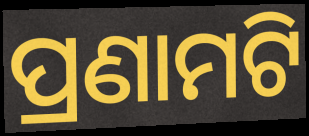
ପ୍ରଣାମଟି